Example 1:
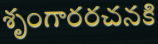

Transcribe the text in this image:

శృంగారరచనకి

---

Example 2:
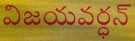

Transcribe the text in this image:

విజయవర్ధన్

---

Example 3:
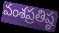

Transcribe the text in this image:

వంశప్రతిష్ఠ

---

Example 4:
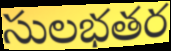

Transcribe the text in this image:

సులభతర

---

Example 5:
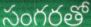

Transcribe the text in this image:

సంగరతో